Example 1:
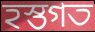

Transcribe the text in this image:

হস্তগত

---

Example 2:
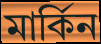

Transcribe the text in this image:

মার্কিন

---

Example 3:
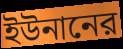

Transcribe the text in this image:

ইউনানের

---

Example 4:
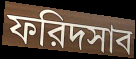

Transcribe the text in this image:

ফরিদসাব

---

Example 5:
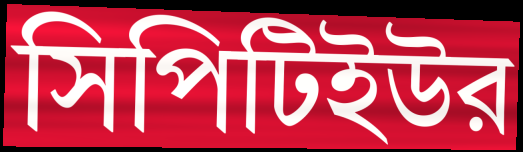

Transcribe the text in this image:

সিপিটিইউর